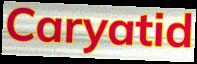
Caryatid